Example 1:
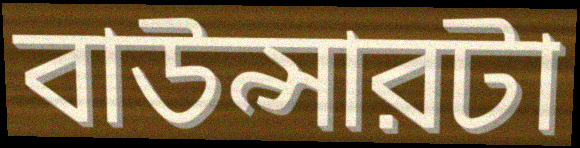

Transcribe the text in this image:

বাউন্সারটা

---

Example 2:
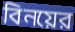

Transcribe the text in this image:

বিনয়ের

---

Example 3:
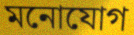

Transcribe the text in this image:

মনোযোগ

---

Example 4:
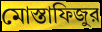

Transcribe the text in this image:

মোস্তাফিজুর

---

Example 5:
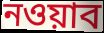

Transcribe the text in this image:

নওয়াব